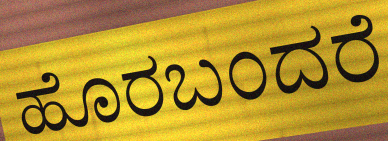
ಹೊರಬಂದರೆ